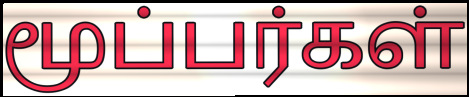
மூப்பர்கள்